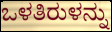
ಒಳತಿರುಳನ್ನು